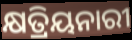
କ୍ଷତ୍ରିୟନାରୀ